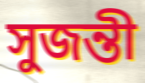
সুজন্তী